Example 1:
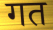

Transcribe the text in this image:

गत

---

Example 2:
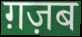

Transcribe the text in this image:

ग़ज़ब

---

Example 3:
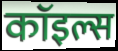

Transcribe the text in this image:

कॉइल्स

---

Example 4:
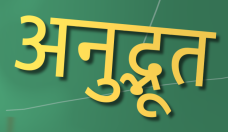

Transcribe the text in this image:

अनुद्भूत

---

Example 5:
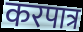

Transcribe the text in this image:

करपात्र